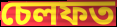
চেলফত